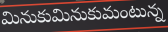
మినుకుమినుకుమంటున్న